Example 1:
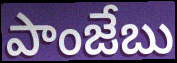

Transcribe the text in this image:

పాంజేబు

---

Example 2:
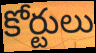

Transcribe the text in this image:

కోర్టులు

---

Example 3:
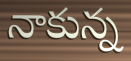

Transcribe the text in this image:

నాకున్న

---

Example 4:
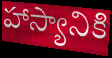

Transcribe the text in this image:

హాస్యానికి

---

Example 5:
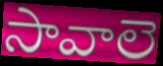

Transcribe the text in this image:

సావాలె